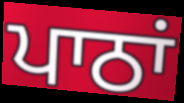
ਪਾਠਾਂ